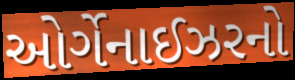
ઓર્ગેનાઈઝરનો